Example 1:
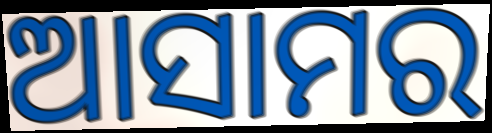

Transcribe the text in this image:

ଆସାମର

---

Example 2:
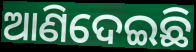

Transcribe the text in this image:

ଆଣିଦେଇଛି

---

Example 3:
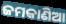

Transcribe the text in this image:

ଜମକାଣିଆ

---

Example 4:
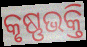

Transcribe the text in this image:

କୃଷ୍ଣଭକ୍ତି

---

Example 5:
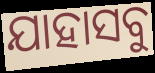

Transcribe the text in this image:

ଯାହାସବୁ